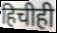
हिचीही